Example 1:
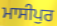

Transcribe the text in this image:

ਮਾਸੀਪੁਰ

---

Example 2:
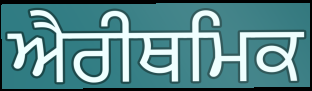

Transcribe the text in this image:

ਐਰੀਥਮਿਕ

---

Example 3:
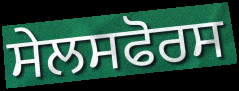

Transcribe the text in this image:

ਸੇਲਸਫੋਰਸ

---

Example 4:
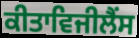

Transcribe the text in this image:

ਕੀਤਾਵਿਜੀਲੈਂਸ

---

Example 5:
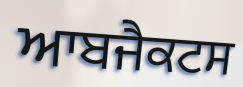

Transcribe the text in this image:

ਆਬਜੈਕਟਸ